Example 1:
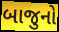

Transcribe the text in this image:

બાજુનો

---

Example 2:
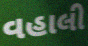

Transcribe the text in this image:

વહાલી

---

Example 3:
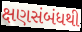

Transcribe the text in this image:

ક્ષણસંબંધથી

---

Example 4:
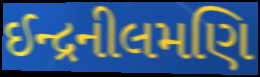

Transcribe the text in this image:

ઈન્દ્રનીલમણિ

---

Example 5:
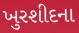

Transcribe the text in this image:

ખુરશીદના